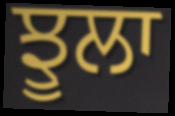
ਝੂਲਾ